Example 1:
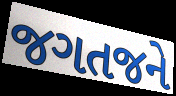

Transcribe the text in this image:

જગતજને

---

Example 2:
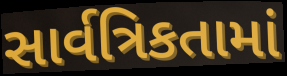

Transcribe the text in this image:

સાર્વત્રિકતામાં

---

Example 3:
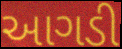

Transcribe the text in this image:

આગડી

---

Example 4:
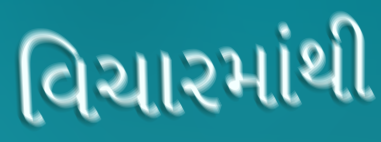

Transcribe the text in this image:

વિચારમાંથી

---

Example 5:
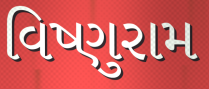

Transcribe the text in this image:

વિષ્ણુરામ